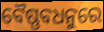
ବୈଷ୍ଣବଧନୁରେ